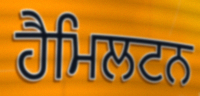
ਹੈਮਿਲਟਨ